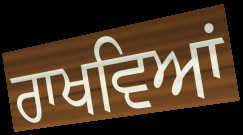
ਰਾਖਵਿਆਂ